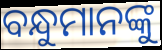
ବନ୍ଧୁମାନଙ୍କୁ